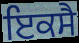
ਇਕਸੈ